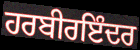
ਹਰਬੀਰਇੰਦਰ